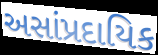
અસાંપ્રદાયિક